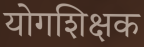
योगशिक्षक